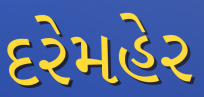
દરેમહેર